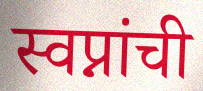
स्वप्नांची